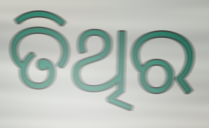
ତିଥିର